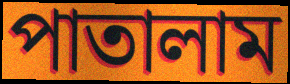
পাতালাম